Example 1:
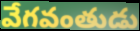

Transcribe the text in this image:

వేగవంతుడు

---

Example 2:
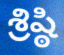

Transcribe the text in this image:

శ్రిష్ఠి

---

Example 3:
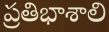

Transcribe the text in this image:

ప్రతిభాశాలి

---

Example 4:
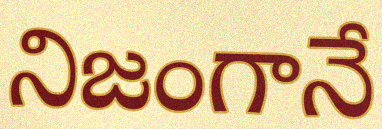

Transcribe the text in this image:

నిజంగానే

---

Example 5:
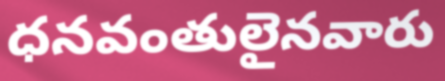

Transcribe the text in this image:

ధనవంతులైనవారు